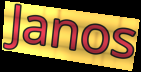
Janos